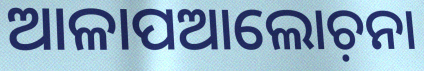
ଆଳାପଆଲୋଚ଼ନା